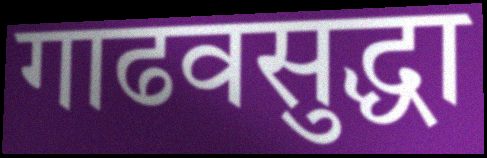
गाढवसुद्धा